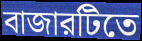
বাজারটিতে